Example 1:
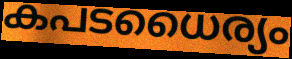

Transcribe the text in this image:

കപടധൈര്യം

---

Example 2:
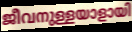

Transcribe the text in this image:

ജീവനുള്ളയാളായി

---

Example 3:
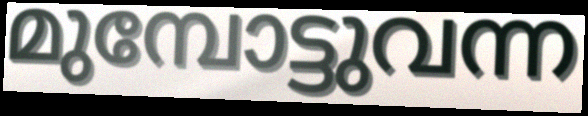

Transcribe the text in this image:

മുമ്പോട്ടുവന്ന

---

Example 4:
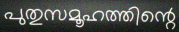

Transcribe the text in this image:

പുതുസമൂഹത്തിന്റെ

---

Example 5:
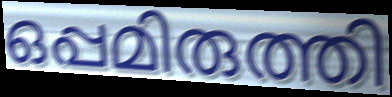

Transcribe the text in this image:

ഒപ്പമിരുത്തി